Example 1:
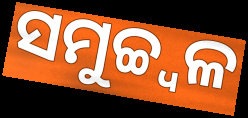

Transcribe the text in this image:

ସମୁଚ୍ଚ୍ୱଳ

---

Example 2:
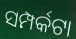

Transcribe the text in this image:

ସମ୍ପର୍କଟା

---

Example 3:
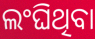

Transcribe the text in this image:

ଲଂଘିଥିବା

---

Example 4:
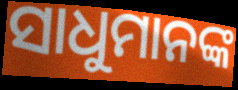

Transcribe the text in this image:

ସାଧୁମାନଙ୍କ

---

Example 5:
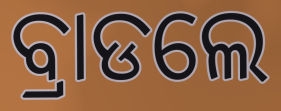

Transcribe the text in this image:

ବ୍ରାଡଲେ